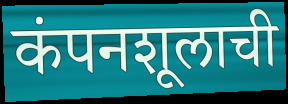
कंपनशूलाची